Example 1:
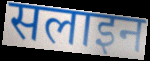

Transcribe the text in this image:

सलाइन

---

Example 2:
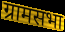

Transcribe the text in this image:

ग्रामसभा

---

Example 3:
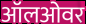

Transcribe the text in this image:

ऑलओवर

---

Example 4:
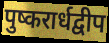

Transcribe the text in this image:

पुष्करार्धद्वीप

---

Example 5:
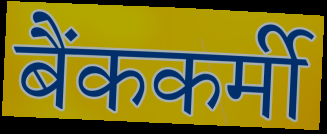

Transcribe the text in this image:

बैंककर्मी